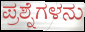
ಪ್ರಶ್ನೆಗಳನು